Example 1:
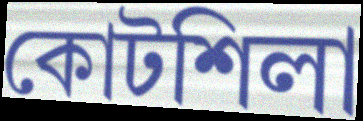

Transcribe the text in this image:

কোটশিলা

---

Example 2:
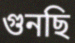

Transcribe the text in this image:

গুনছি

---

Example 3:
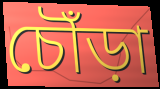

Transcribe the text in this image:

চৌঁড়া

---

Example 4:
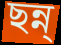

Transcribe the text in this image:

ছন্ন্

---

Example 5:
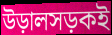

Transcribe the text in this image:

উড়ালসড়কই